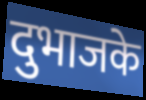
दुभाजके